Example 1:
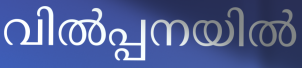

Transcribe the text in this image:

വിൽപ്പനയിൽ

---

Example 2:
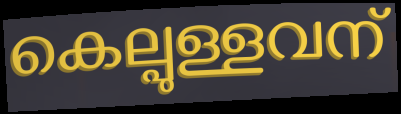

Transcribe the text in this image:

കെല്പുള്ളവന്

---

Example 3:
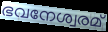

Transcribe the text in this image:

ഭവനേശ്വരമ്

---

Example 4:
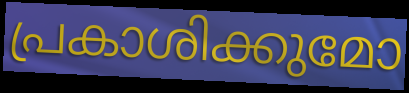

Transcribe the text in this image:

പ്രകാശിക്കുമോ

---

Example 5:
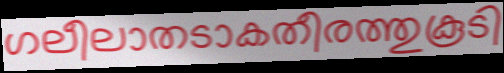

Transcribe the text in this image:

ഗലീലാതടാകതീരത്തുകൂടി